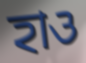
হাও